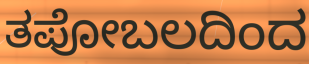
ತಪೋಬಲದಿಂದ